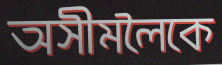
অসীমলৈকে